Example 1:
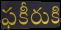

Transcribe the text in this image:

ఫకీరుకి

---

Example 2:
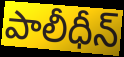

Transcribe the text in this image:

పాలీధీన్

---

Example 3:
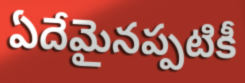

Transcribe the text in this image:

ఏదేమైనప్పటికీ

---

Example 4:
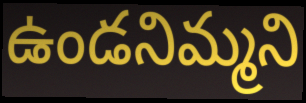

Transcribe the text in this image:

ఉండనిమ్మని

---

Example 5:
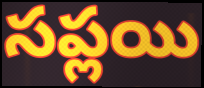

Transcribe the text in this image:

సప్లయి